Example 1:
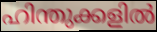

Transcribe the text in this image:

ഹിന്തുക്കളിൽ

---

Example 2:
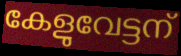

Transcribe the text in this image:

കേളുവേട്ടന്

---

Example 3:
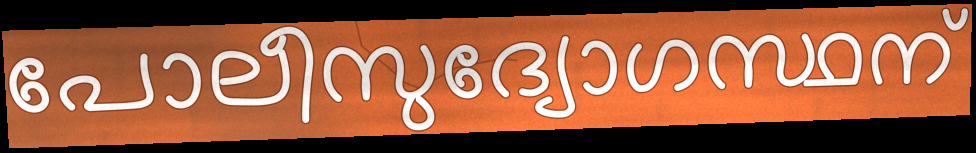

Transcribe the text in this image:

പോലീസുദ്യോഗസ്ഥന്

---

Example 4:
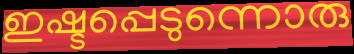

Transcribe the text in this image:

ഇഷ്ടപ്പെടുന്നൊരു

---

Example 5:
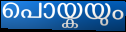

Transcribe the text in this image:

പൊയ്കയും